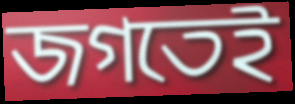
জগতেই